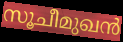
സൂചീമുഖൻ